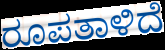
ರೂಪತಾಳಿದೆ